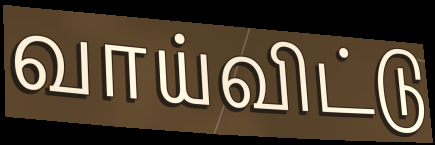
வாய்விட்டு